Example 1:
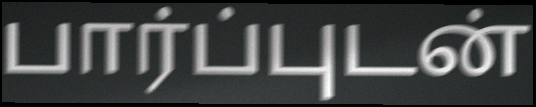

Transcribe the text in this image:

பார்ப்புடன்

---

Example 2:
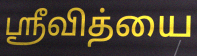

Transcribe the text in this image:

ஸ்ரீவித்யை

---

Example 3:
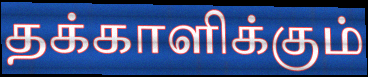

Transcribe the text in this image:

தக்காளிக்கும்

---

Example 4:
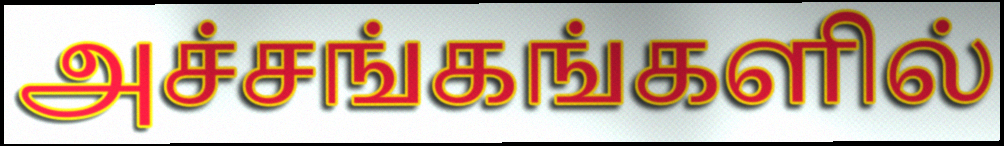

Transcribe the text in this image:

அச்சங்கங்களில்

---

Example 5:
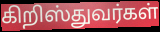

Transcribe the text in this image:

கிறிஸ்துவர்கள்